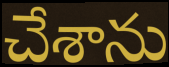
చేశాను